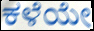
ಕಳೆಯೇ